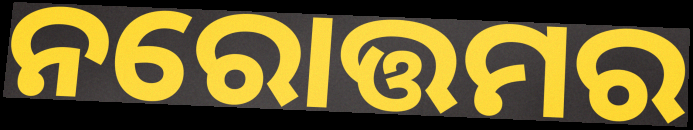
ନରୋତ୍ତମର